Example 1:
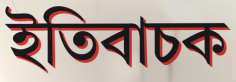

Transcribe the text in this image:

ইতিবাচক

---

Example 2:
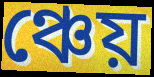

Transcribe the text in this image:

ঞ্চেয়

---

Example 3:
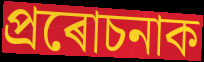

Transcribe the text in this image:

প্ৰৰোচনাক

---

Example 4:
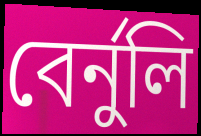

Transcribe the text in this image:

বেৰ্নুলি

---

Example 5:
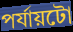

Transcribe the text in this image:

পৰ্যায়টো